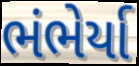
ભંભેર્યા